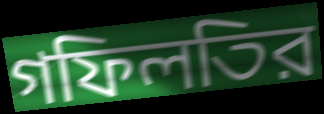
গফিলতির